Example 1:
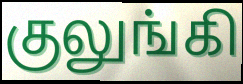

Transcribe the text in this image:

குலுங்கி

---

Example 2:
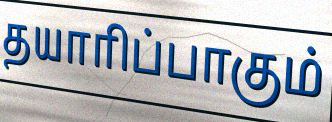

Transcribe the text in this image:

தயாரிப்பாகும்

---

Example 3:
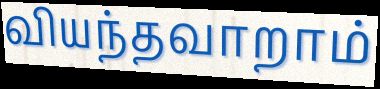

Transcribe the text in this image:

வியந்தவாறாம்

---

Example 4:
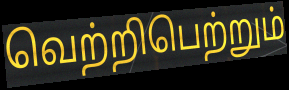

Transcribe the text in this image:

வெற்றிபெற்றும்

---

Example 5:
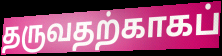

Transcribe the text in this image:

தருவதற்காகப்